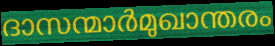
ദാസന്മാർമുഖാന്തരം